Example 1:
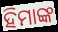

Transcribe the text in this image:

ହିମାଙ୍କ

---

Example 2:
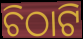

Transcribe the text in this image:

ଚିଠାଟି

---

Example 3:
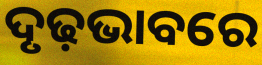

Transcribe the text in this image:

ଦୃଢ଼ଭାବରେ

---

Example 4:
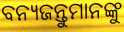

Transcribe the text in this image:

ବନ୍ୟଜନ୍ତୁମାନଙ୍କୁ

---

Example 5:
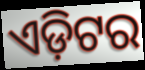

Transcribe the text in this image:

ଏଡ଼ିଟର